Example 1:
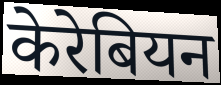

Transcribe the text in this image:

केरेबियन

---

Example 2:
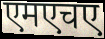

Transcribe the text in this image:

एमएचए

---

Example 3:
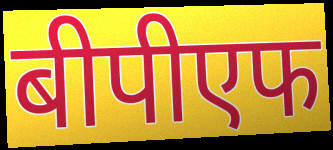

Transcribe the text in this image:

बीपीएफ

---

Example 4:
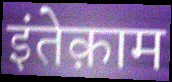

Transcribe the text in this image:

इंतेक़ाम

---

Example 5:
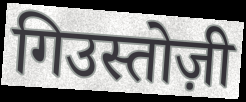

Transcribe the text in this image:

गिउस्तोज़ी